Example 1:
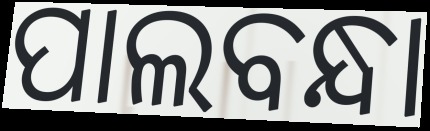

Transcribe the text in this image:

ପାଲବନ୍ଧା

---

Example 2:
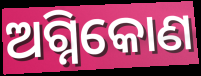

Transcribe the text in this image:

ଅଗ୍ନିକୋଣ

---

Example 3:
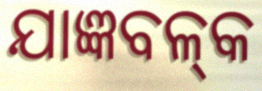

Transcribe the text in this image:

ଯାଜ୍ଞବଳ୍‍କ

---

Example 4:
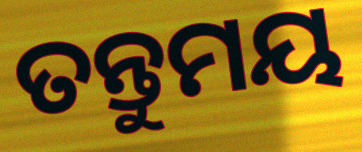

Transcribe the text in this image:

ତନ୍ତୁମୟ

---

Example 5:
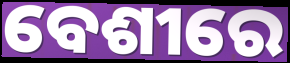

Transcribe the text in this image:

ବେଶୀରେ